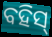
ବହିସ୍